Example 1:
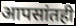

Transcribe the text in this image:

आपसांतही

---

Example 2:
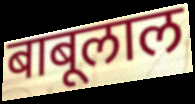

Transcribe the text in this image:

बाबूलाल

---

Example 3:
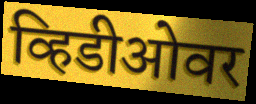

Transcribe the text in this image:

व्हिडीओवर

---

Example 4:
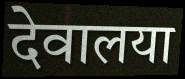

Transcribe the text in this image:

देवालया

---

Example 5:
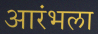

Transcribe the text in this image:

आरंभला